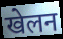
खेलन